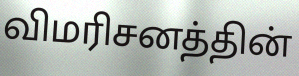
விமரிசனத்தின்